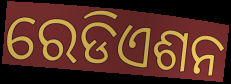
ରେଡିଏଶନ